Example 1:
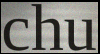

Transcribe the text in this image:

chu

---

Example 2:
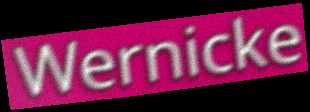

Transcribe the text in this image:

Wernicke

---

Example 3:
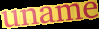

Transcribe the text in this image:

uname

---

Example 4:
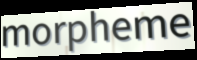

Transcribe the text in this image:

morpheme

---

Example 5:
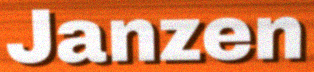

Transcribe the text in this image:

Janzen